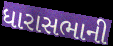
ધારાસભાની